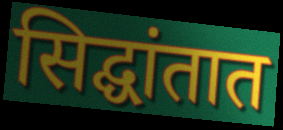
सिद्घांतात